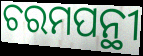
ଚରମପନ୍ଥୀ